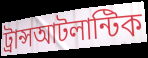
ট্রান্সআটলান্টিক